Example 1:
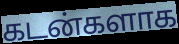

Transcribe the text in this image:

கடன்களாக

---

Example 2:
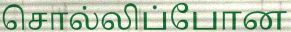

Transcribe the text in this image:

சொல்லிப்போன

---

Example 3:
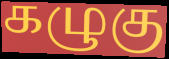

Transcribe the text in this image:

கழுகு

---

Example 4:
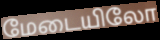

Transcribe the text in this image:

மேடையிலோ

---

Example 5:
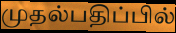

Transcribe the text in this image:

முதல்பதிப்பில்